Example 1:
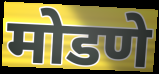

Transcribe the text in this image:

मोडणे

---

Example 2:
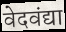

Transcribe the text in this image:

वेदवंद्या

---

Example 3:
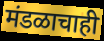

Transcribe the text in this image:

मंडळाचाही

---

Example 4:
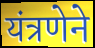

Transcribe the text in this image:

यंत्रणेने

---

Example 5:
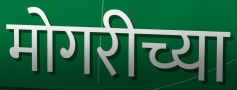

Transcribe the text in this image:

मोगरीच्या